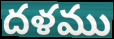
దళము